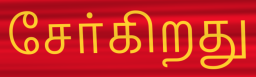
சேர்கிறது